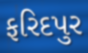
ફરિદપુર